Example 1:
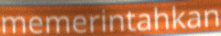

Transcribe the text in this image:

memerintahkan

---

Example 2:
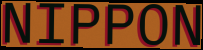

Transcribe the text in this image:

NIPPON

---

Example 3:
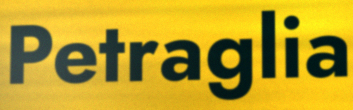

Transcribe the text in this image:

Petraglia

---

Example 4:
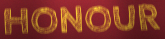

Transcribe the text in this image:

HONOUR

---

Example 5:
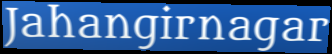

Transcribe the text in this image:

Jahangirnagar